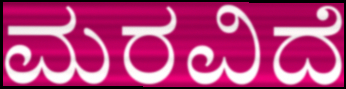
ಮರವಿದೆ